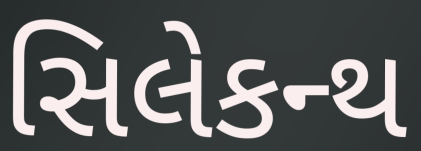
સિલેકન્થ